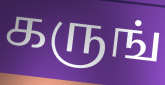
கருங்